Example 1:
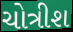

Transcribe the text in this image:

ચોત્રીશ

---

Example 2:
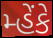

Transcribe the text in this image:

મ્હેંકે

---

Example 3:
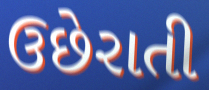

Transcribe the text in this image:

ઉછેરાતી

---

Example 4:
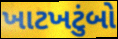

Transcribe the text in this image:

ખાટખટુંબો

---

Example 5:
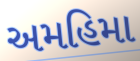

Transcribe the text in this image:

અમહિમા